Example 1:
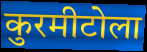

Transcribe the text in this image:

कुरमीटोला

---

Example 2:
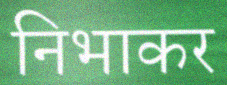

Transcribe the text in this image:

निभाकर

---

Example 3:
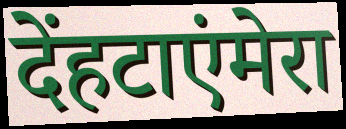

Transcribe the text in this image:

देंहटाएंमेरा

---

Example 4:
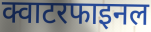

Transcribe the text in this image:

क्वाटरफाइनल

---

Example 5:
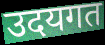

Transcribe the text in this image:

उदयगत